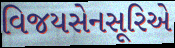
વિજયસેનસૂરિએ